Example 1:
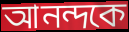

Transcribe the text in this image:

আনন্দকে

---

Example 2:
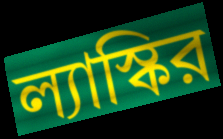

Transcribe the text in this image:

ল্যাস্কির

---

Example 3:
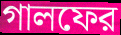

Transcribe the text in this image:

গালফের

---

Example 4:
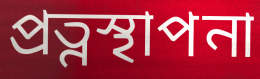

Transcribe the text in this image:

প্রত্নস্থাপনা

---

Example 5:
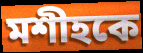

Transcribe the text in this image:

মশীহকে